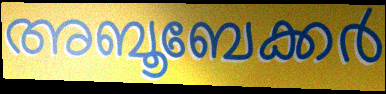
അബൂബേക്കർ